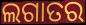
ଲଗାତର